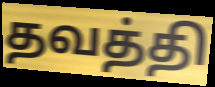
தவத்தி